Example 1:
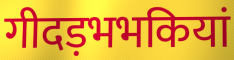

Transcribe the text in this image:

गीदड़भभकियां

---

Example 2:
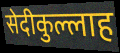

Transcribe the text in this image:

सेदीकुल्लाह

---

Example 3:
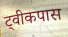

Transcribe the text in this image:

ट्वीकपास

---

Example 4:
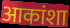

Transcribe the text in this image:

आकांशा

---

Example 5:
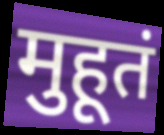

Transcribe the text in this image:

मुहूतं